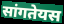
सांगतेयस